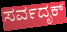
ಸರ್ವದೃಕ್